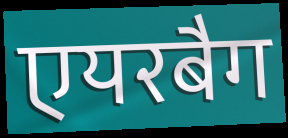
एयरबैग